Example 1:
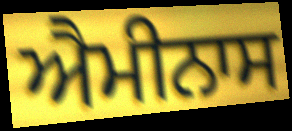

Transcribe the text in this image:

ਐਮੀਨਾਸ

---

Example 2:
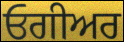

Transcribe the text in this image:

ਓਗੀਅਰ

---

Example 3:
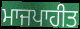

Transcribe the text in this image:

ਮਾਜਪਾਹੀਤ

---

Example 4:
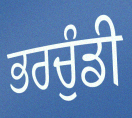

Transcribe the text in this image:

ਭਰਚੁੰਡੀ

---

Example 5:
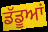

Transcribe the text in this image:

ਡੱਡੂਆਂ